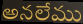
అనలేము